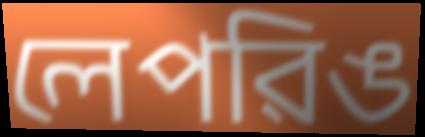
লেপৱিঙ